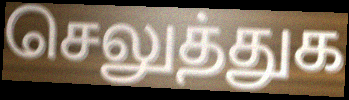
செலுத்துக